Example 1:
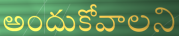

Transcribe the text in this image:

అందుకోవాలని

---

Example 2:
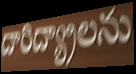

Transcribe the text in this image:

దారిద్య్రాలను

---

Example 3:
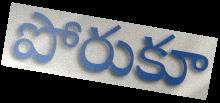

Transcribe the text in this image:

పోరుకూ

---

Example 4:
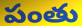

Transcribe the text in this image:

పంతు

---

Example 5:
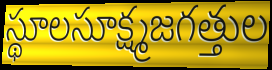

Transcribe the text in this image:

స్థూలసూక్ష్మజగత్తుల